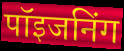
पॉइजनिंग